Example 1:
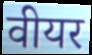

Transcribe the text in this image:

वीयर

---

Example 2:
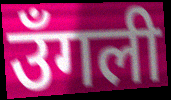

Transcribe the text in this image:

उँगली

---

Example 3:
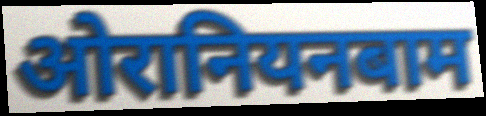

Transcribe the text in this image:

ओरानियनबाम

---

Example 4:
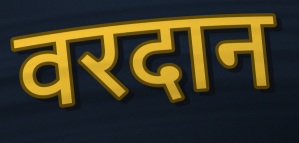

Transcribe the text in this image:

वरदान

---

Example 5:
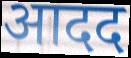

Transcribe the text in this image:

आदद